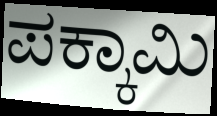
ಪಕ್ಕಾಮಿ